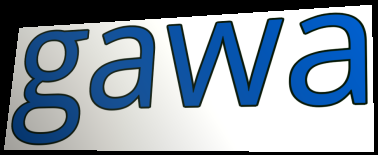
gawa